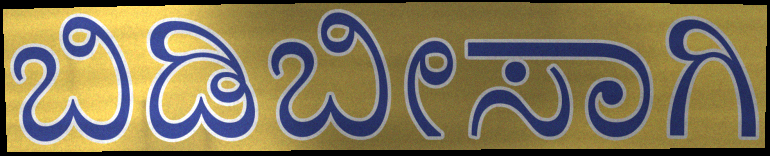
ಬಿಡಿಬೀಸಾಗಿ